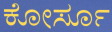
ಕೋರ್ಸೂ